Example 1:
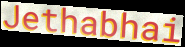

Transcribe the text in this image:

Jethabhai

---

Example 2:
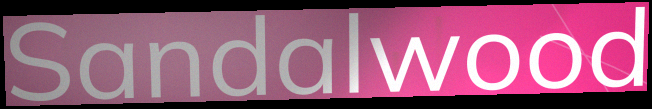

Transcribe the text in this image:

Sandalwood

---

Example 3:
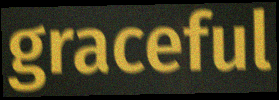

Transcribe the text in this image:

graceful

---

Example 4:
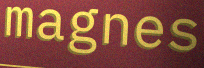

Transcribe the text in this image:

magnes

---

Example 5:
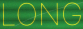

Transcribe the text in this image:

LONG